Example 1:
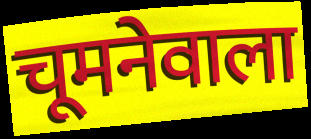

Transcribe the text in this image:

चूमनेवाला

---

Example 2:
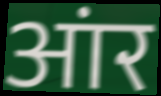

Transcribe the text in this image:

आंर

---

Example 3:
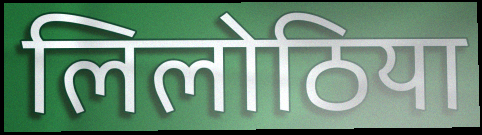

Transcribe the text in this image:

लिलोठिया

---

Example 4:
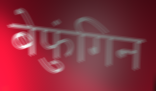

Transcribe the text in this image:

बेफुंगिन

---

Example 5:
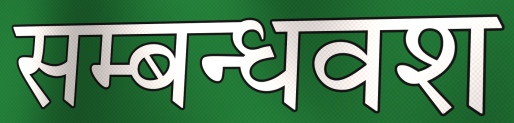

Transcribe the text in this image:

सम्बन्धवश